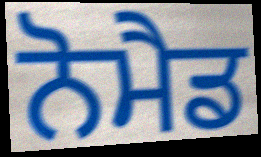
ਨੋਮੈਡ